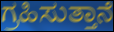
ಗ್ರಹಿಸುತ್ತಾನೆ